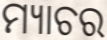
ମ୍ୟାଚର